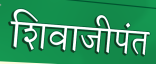
शिवाजीपंत